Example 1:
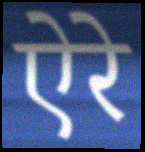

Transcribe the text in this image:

ऐरे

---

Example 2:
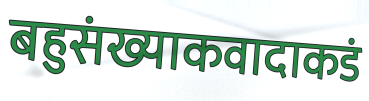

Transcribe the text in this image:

बहुसंख्याकवादाकडं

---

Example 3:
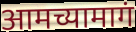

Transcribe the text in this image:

आमच्यामागं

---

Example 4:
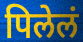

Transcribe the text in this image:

पिलेलं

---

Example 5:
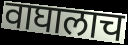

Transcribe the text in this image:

वाघालाच